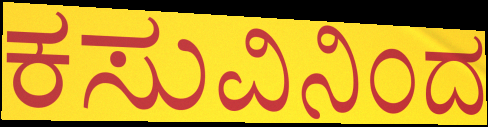
ಕಸುವಿನಿಂದ